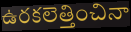
ఉరకలెత్తించినా